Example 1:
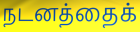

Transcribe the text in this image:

நடனத்தைக்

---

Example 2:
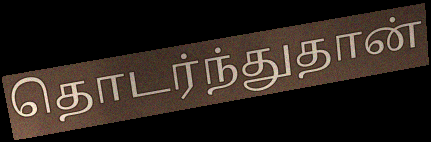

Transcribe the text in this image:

தொடர்ந்துதான்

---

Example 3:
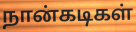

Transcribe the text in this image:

நான்கடிகள்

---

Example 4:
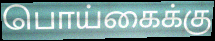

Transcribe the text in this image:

பொய்கைக்கு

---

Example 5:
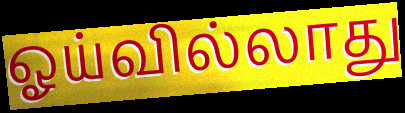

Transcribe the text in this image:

ஓய்வில்லாது